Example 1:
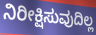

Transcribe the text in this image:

ನಿರೀಕ್ಷಿಸುವುದಿಲ್ಲ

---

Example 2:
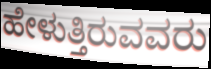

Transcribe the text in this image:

ಹೇಳುತ್ತಿರುವವರು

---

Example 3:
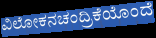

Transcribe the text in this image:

ವಿಲೋಕನಚಂದ್ರಿಕೆಯೊಂದೆ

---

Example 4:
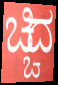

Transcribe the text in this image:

ಚ್ಚಿದ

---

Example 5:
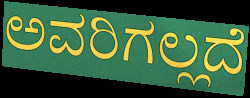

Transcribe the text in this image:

ಅವರಿಗಲ್ಲದೆ